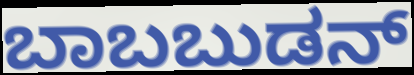
ಬಾಬಬುಡನ್